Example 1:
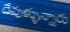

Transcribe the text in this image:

దేవుళ్ళున్నారు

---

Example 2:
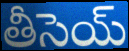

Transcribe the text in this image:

తీసెయ్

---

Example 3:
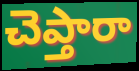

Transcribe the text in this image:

చెప్తారా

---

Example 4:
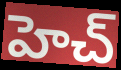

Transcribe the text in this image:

హెచ్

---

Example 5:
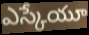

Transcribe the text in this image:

ఎస్కేయూ